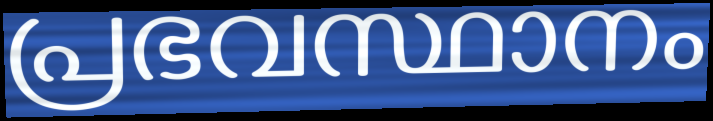
പ്രഭവസ്ഥാനം